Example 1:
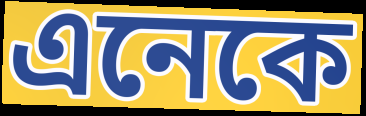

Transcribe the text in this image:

এনেকে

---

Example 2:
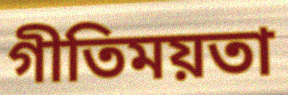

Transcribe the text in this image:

গীতিময়তা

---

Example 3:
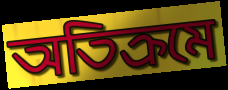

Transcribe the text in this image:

অতিক্ৰমে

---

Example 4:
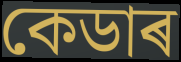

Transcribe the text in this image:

কেডাৰ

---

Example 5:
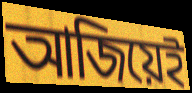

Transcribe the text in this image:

আজিয়েই